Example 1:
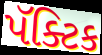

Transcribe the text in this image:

પૅક્ટિક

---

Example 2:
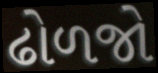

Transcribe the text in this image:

ઢોળજો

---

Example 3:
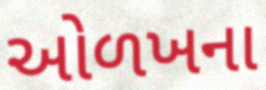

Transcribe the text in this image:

ઓળખના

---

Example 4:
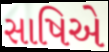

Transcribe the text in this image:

સાષિએ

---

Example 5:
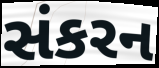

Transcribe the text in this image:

સંકરન